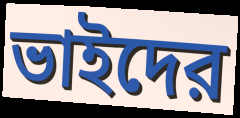
ভাইদের